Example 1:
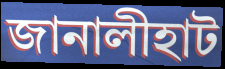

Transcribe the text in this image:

জানালীহাট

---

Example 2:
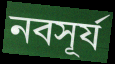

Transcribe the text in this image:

নবসূর্য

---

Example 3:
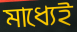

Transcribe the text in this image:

মাধ্যেই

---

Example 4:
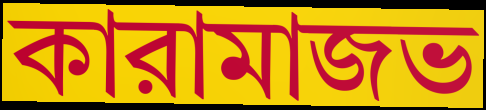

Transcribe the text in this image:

কারামাজভ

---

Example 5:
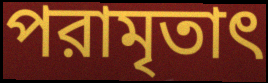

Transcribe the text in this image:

পরামৃতাৎ